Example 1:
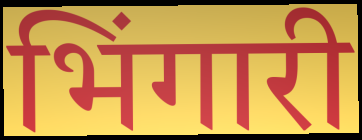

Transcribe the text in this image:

भिंगारी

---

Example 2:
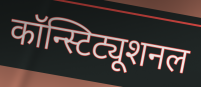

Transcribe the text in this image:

कॉन्स्टिट्यूशनल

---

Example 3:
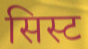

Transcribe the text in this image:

सिस्ट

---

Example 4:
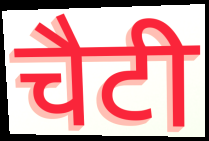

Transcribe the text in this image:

चैटी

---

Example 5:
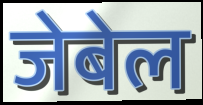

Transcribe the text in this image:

जेबेल